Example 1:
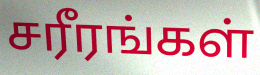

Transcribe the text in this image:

சரீரங்கள்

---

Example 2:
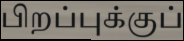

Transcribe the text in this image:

பிறப்புக்குப்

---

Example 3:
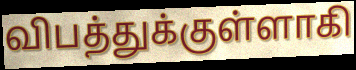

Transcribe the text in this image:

விபத்துக்குள்ளாகி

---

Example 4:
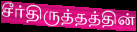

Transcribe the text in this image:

சீர்திருத்தத்தின்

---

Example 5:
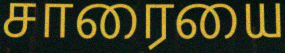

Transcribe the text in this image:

சாரையை